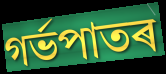
গৰ্ভপাতৰ